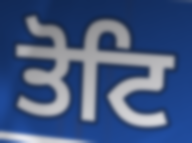
ਤੋਟਿ